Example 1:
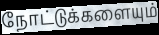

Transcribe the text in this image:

நோட்டுக்களையும்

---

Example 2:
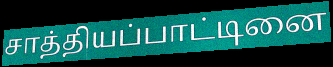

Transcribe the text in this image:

சாத்தியப்பாட்டினை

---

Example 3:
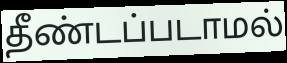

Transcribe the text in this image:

தீண்டப்படாமல்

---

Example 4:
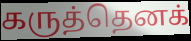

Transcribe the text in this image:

கருத்தெனக்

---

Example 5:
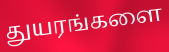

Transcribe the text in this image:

துயரங்களை